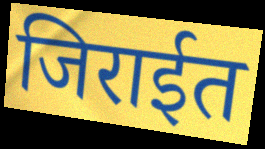
जिराईत